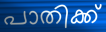
പാതിക്ക്